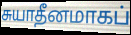
சுயாதீனமாகப்